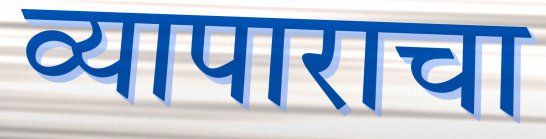
व्यापाराचा